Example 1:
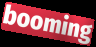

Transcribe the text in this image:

booming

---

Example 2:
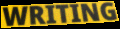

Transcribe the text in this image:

WRITING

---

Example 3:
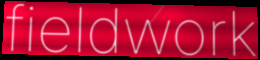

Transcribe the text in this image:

fieldwork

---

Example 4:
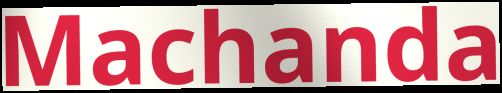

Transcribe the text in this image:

Machanda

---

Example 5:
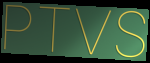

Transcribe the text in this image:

PTVS